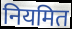
नियमित